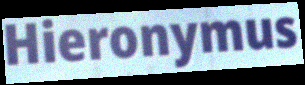
Hieronymus